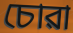
চোৱা